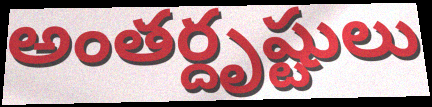
అంతర్దృష్టులు